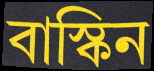
বাস্কিন